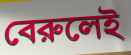
বেরুলেই